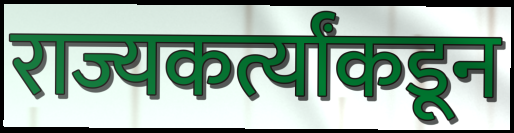
राज्यकर्त्यांकडून